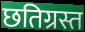
छतिग्रस्त